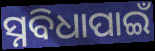
ସ୍ନବିଧାପାଇଁ